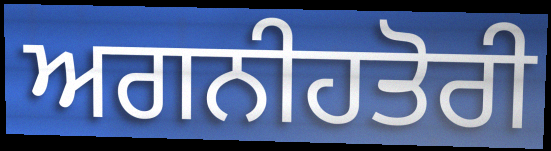
ਅਗਨੀਹਤੋਰੀ